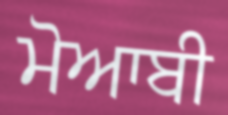
ਮੋਆਬੀ